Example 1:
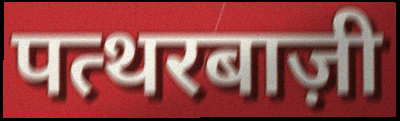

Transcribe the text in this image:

पत्थरबाज़ी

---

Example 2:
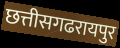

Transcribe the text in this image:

छत्तीसगढरायपुर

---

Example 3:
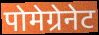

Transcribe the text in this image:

पोमेग्रेनेट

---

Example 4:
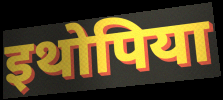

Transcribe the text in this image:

इथोपिया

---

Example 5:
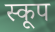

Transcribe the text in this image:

स्कूप